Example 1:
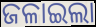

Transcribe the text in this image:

ଜଳାଇଲା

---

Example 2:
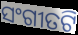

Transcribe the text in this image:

ସଂଗୀତଟି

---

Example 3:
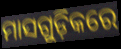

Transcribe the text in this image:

ମାସଗୁଡ଼ିକରେ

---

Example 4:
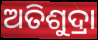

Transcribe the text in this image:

ଅତିଶୁଦ୍ରା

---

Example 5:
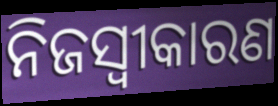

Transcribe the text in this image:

ନିଜସ୍ବୀକାରଣ